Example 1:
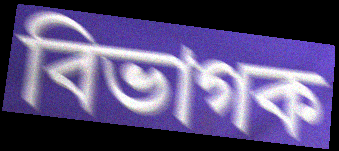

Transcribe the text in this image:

বিভাগক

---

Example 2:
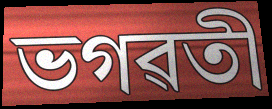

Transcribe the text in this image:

ভগৱতী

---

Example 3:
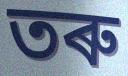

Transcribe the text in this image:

তৰু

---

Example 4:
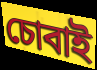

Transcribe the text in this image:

চোবাই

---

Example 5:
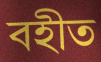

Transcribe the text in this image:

বহীত